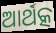
ଆର୍ଥତ୍କ